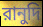
রানুদি